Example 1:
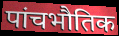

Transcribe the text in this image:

पांचभौतिक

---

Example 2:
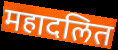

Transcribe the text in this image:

महादलित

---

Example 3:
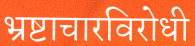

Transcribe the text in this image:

भ्रष्टाचारविरोधी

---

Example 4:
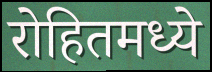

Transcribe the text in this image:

रोहितमध्ये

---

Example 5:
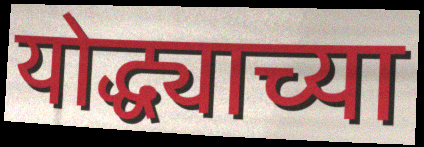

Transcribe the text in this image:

योद्ध्याच्या